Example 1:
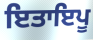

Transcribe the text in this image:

ਇਤਾਇਪੂ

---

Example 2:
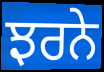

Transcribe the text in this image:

ਝਰਨੇ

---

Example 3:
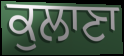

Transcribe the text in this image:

ਕੁਲਾਣਾ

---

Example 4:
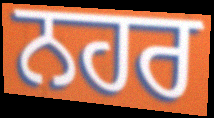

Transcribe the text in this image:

ਨਹਰ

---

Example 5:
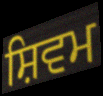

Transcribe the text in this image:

ਸ਼ਿਵਮ